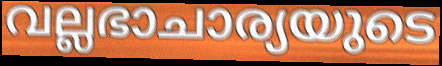
വല്ലഭാചാര്യയുടെ